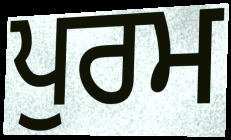
ਪੁਰਮ